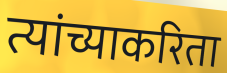
त्यांच्याकरिता